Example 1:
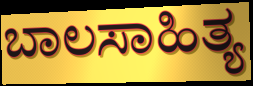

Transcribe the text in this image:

ಬಾಲಸಾಹಿತ್ಯ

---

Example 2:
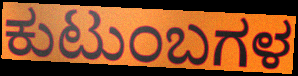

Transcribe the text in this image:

ಕುಟುಂಬಗಳ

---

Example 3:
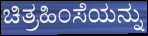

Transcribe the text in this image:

ಚಿತ್ರಹಿಂಸೆಯನ್ನು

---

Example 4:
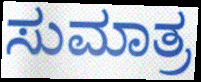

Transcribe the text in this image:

ಸುಮಾತ್ರ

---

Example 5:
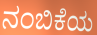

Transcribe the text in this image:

ನಂಬಿಕೆಯ